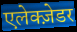
एलेक्ज़ेडर